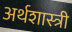
अर्थशास्त्री